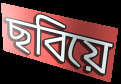
ছবিয়ে